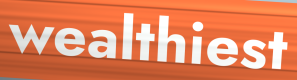
wealthiest